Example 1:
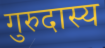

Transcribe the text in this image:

गुरुदास्य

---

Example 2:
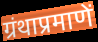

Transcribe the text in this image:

ग्रंथाप्रमाणें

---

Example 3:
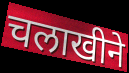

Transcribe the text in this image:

चलाखीने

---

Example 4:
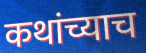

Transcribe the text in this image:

कथांच्याच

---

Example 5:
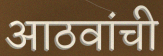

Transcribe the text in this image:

आठवांची